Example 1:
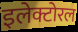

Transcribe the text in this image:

इलेक्टोरल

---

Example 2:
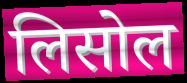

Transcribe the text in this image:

लिसोल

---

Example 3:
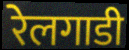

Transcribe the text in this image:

रेलगाडी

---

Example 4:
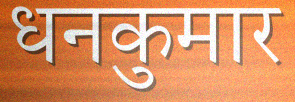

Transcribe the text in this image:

धनकुमार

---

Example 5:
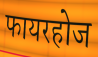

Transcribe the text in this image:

फायरहोज